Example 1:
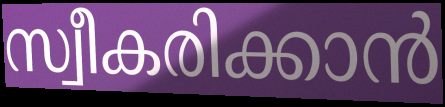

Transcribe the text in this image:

സ്വീകരിക്കാൻ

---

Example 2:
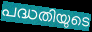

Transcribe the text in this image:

പദ്ധതിയുടെ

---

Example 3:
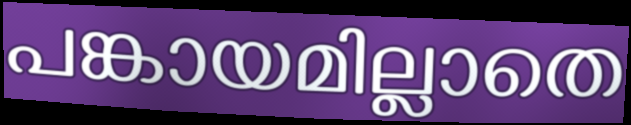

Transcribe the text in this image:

പങ്കായമില്ലാതെ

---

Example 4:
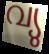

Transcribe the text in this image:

വ്യു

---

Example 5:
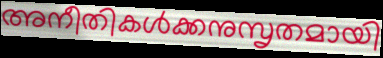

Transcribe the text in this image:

അനീതികൾക്കനുസൃതമായി